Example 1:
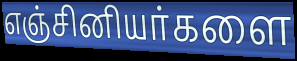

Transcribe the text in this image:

எஞ்சினியர்களை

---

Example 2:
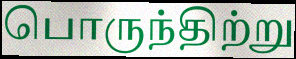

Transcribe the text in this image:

பொருந்திற்று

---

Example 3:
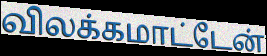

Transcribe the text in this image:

விலக்கமாட்டேன்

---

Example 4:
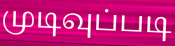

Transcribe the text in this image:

முடிவுப்படி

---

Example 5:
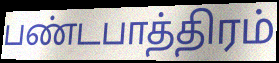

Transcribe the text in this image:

பண்டபாத்திரம்